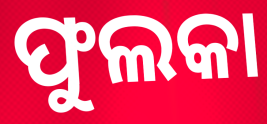
ଫୁଲକା